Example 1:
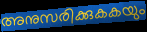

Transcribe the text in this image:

അനുസരിക്കുകകയും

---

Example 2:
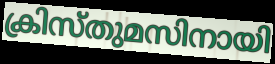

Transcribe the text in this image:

ക്രിസ്തുമസിനായി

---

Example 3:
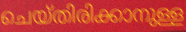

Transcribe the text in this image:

ചെയ്തിരിക്കാനുള്ള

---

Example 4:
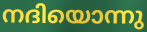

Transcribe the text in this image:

നദിയൊന്നു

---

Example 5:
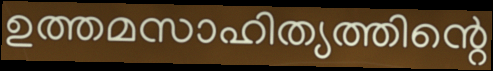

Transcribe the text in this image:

ഉത്തമസാഹിത്യത്തിന്റെ